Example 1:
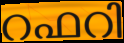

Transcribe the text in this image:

റഫറി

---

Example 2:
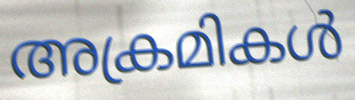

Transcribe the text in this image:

അക്രമികൾ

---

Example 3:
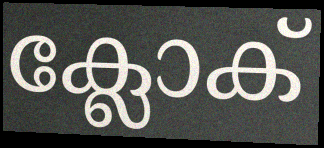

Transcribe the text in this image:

ക്ലോക്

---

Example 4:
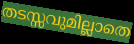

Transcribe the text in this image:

തടസ്സവുമില്ലാതെ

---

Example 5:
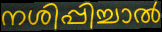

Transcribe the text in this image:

നശിപ്പിച്ചാൽ